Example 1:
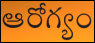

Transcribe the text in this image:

ఆరోగ్యం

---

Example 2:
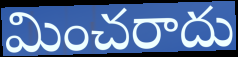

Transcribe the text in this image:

మించరాదు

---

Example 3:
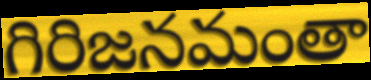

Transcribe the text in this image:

గిరిజనమంతా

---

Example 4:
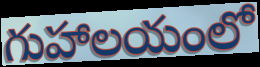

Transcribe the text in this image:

గుహాలయంలో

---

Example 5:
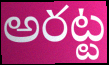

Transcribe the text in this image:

అరట్ట